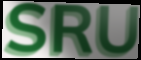
SRU